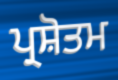
ਪ੍ਰਸ਼ੋਤਮ